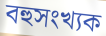
বহুসংখ্যক